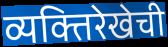
व्यक्तिरेखेची